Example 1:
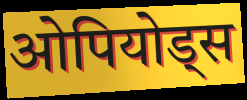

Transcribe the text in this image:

ओपियोड्स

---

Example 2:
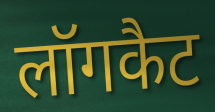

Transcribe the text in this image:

लॉगकैट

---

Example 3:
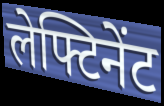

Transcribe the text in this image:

लेफ्टिनेंट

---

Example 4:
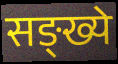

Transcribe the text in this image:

सङ्ख्ये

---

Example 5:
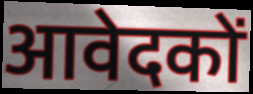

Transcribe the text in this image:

आवेदकों